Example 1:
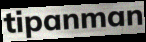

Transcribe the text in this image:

tipanman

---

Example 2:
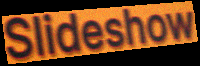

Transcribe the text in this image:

Slideshow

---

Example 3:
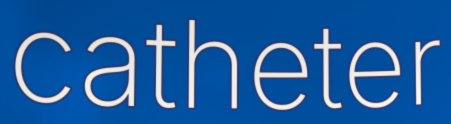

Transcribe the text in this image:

catheter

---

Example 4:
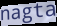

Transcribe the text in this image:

nagta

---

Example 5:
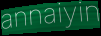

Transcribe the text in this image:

annaiyin